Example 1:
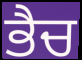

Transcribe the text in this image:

ਭੈਚ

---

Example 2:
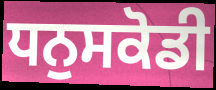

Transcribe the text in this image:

ਧਨੁਸਕੋਡੀ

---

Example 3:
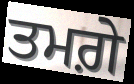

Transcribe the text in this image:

ਤਮਗ਼ੇ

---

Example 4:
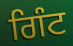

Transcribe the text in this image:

ਗਿੰਟ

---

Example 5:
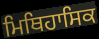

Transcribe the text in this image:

ਮਿਥਿਹਾਸਿਕ